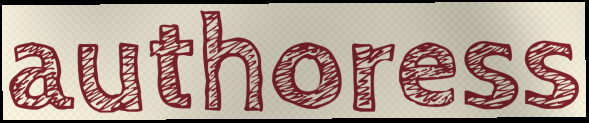
authoress